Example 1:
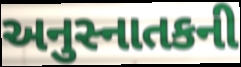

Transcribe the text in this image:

અનુસ્નાતકની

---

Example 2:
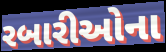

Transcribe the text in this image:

રબારીઓના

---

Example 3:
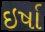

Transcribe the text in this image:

ઇર્ષા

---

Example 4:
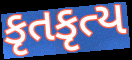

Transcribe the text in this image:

કૃતકૃત્ય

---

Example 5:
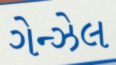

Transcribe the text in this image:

ગેન્ઝેલ